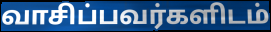
வாசிப்பவர்களிடம்